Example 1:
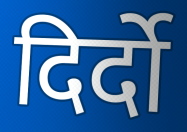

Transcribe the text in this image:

दिर्दो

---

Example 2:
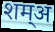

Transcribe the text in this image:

शम्अ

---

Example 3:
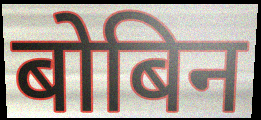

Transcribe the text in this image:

बोबिन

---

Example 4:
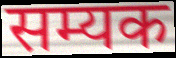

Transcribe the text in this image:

सम्यक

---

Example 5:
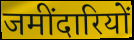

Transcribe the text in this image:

जमींदारियों